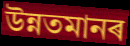
উন্নতমানৰ